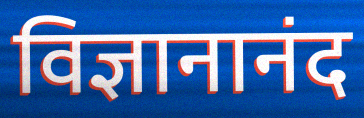
विज्ञानानंद